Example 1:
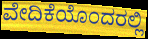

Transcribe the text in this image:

ವೇದಿಕೆಯೊಂದರಲ್ಲಿ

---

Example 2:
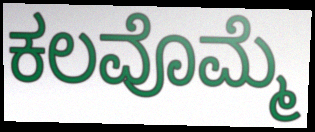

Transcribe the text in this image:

ಕಲವೊಮ್ಮೆ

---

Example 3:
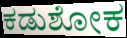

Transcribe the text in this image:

ಕಡುಶೋಕ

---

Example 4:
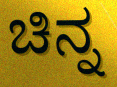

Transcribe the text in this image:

ಚಿನ್ನ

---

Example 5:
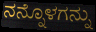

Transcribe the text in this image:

ನನ್ನೊಳಗನ್ನು